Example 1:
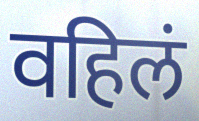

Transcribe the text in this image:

वहिलं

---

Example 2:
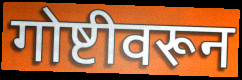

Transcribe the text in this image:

गोष्टीवरून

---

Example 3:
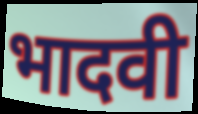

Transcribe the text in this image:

भादवी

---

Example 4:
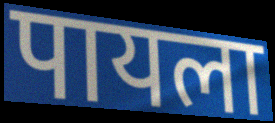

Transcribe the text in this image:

पायला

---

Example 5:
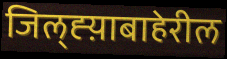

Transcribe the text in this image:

जिल्ह्य़ाबाहेरील